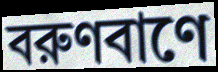
বরুণবাণে